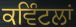
ਕਵਿੰਟਲਾਂ